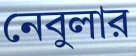
নেবুলার